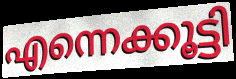
എന്നെക്കൂട്ടി